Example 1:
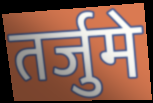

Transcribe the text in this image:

तर्जुमे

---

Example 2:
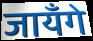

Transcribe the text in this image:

जायँगे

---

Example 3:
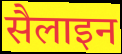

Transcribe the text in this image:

सैलाइन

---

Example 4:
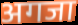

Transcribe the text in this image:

अगजा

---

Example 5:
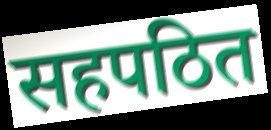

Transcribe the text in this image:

सहपठित